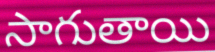
సాగుతాయి